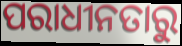
ପରାଧୀନତାରୁ